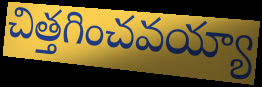
చిత్తగించవయ్యా